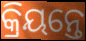
କ୍ରିୟନ୍ତେ